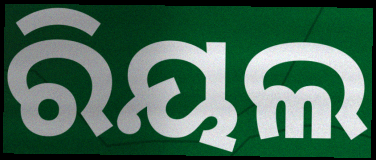
ରିୟଲ